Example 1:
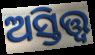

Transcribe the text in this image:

ଅସ୍ତିତ୍ତ୍ବ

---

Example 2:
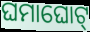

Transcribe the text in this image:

ଘମାଘୋଟ୍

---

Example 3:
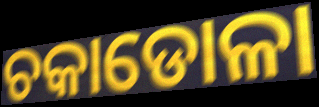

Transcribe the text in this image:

ଚକାଡୋଳା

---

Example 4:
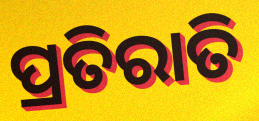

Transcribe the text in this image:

ପ୍ରତିରାତି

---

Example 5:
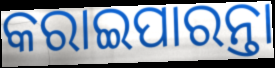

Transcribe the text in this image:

କରାଇପାରନ୍ତା